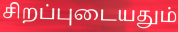
சிறப்புடையதும்